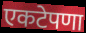
एकटेपणा